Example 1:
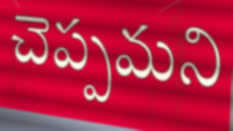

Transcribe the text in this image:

చెప్పమని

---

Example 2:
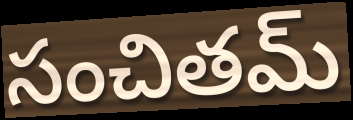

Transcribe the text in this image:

సంచితమ్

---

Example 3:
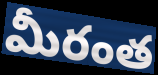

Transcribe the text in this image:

మీరంత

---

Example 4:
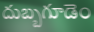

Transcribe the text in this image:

దుబ్బగూడెం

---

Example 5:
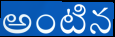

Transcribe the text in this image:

అంటిన